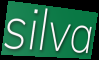
silva